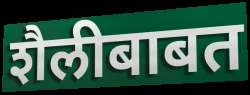
शैलीबाबत